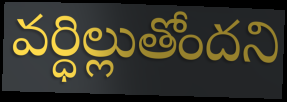
వర్ధిల్లుతోందని